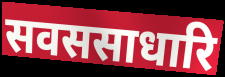
सवससाधारि